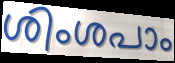
ശിംശപാം